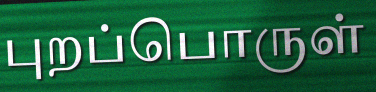
புறப்பொருள்